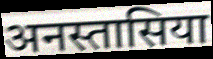
अनस्तासिया